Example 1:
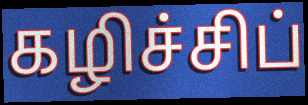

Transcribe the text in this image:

கழிச்சிப்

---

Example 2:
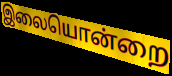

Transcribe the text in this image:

இலையொன்றை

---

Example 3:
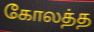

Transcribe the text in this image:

கோலத்த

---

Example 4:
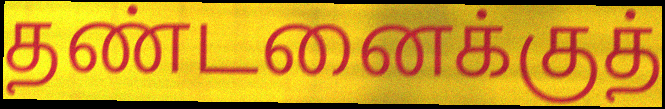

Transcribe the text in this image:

தண்டனைக்குத்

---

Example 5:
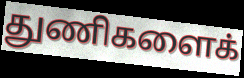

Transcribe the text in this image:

துணிகளைக்